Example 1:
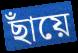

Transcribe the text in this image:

ছাঁয়ে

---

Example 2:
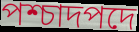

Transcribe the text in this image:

পশ্চাদপদে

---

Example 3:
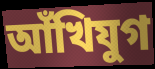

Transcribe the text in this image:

আঁখিযুগ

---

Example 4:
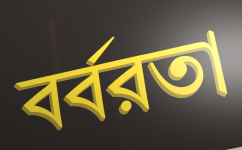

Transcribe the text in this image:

বর্বরতা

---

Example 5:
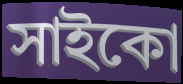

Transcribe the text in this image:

সাইকো